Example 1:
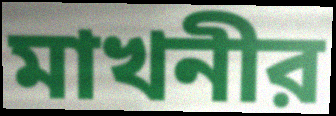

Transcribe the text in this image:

মাখনীর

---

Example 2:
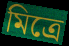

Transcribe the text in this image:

মিত্রে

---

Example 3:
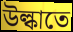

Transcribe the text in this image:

উল্কাতে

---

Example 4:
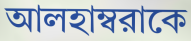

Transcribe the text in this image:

আলহাম্বরাকে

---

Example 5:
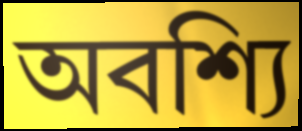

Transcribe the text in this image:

অবশ্যি